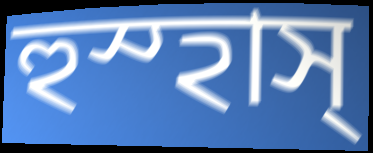
হুস্হাস্